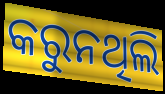
କରୁନଥିଲି